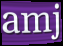
amj